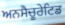
ਅਨਸੈਚੂਰੇਟਿਡ